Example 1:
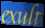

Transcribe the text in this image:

exult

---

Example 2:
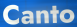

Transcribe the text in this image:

Canto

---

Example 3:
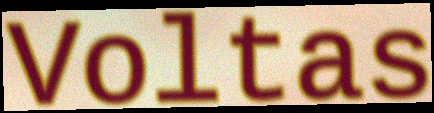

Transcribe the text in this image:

Voltas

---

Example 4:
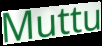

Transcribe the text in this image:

Muttu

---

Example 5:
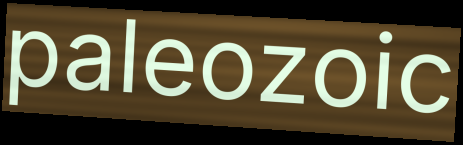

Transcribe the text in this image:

paleozoic